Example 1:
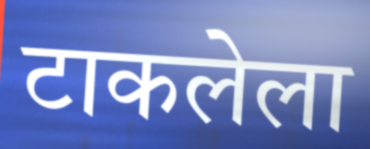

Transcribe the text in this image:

टाकलेला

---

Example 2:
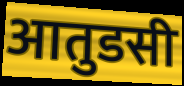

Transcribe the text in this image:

आतुडसी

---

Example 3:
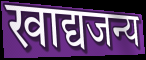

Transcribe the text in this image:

खाद्यजन्य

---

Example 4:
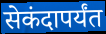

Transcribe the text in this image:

सेकंदापर्यंत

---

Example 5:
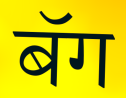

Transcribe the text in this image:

बॅग